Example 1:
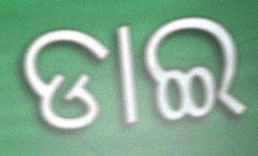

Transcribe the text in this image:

ଡାଇ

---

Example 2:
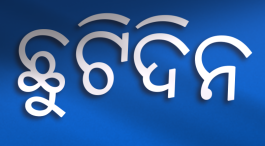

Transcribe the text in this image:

ଛୁଟିଦିନ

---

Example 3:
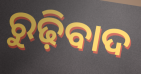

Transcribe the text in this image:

ରୁଢ଼ିବାଦ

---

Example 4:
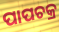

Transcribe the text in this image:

ପାପଚକ୍ର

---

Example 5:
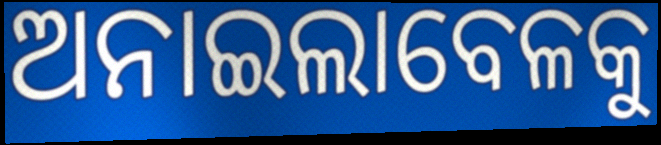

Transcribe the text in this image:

ଅନାଇଲାବେଳକୁ